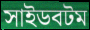
সাইডবটম